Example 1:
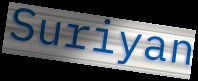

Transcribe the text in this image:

Suriyan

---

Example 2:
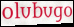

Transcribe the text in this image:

olubugo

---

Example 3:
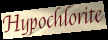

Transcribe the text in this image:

Hypochlorite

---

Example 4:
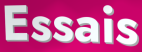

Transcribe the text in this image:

Essais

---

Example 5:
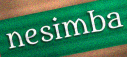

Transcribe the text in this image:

nesimba